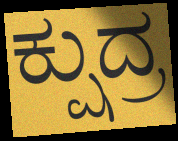
ಕ್ಷುದ್ರ